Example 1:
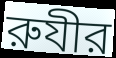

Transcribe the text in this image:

রুযীর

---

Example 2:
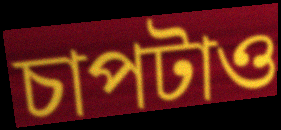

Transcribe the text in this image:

চাপটাও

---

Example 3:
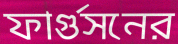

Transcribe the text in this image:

ফার্গুসনের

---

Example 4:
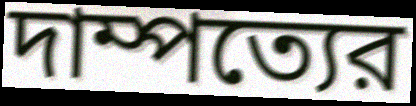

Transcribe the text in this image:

দাম্পত্যের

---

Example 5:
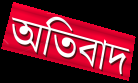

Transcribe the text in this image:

অতিবাদ